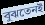
বুঝতেনই